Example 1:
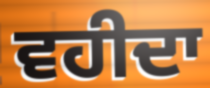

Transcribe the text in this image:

ਵਹੀਦਾ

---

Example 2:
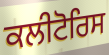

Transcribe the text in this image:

ਕਲੀਟੋਰਿਸ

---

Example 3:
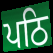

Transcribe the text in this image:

ਪਠਿ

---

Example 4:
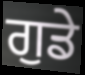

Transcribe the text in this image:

ਗੁਡੇ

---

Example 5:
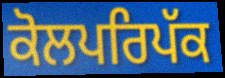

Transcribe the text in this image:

ਕੋਲਪਰਿਪੱਕ